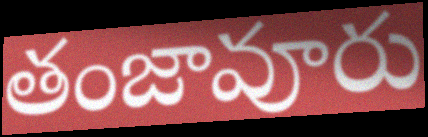
తంజావూరు